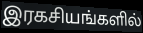
இரகசியங்களில்